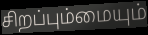
சிறப்பும்மையும்